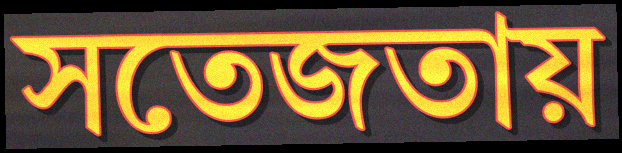
সতেজতায়